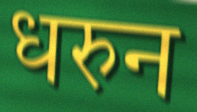
धरुन